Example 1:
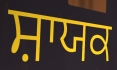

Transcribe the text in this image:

ਸ਼ਾਯਕ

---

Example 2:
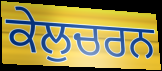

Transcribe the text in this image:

ਕੇਲੁਚਰਨ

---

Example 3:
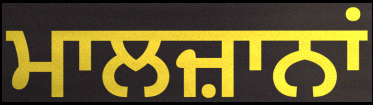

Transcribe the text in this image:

ਮਾਲਜ਼ਾਨਾਂ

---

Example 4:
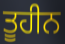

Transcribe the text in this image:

ਤੂਹੀਨ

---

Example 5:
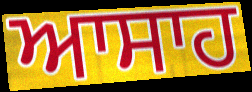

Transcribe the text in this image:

ਆਸਾਹ